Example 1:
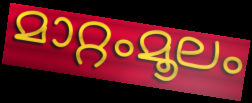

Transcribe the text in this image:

മാറ്റംമൂലം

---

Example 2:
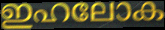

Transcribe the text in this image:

ഇഹലോക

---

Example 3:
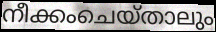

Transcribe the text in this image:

നീക്കംചെയ്താലും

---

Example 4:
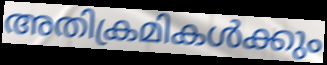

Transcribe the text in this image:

അതിക്രമികൾക്കും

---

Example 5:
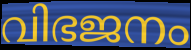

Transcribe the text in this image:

വിഭജനം